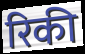
रिकी